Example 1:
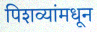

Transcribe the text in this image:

पिशव्यांमधून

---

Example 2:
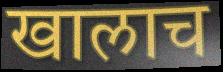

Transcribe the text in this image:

खालाच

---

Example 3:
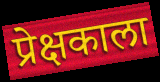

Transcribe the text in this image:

प्रेक्षकाला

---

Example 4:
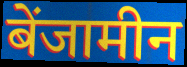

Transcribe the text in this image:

बेंजामीन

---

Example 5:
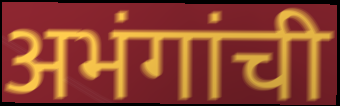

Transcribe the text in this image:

अभंगांची